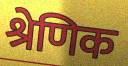
श्रेणिक